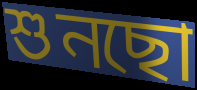
শুনছো